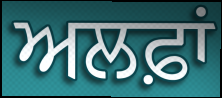
ਅਲਫ਼ਾਂ